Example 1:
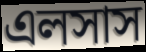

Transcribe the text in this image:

এলসাস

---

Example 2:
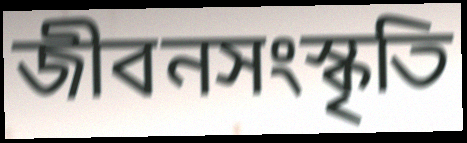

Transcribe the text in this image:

জীবনসংস্কৃতি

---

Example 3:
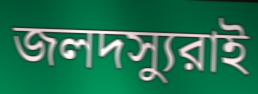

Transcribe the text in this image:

জলদস্যুরাই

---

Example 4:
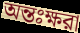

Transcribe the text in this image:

অন্তঃক্ষরা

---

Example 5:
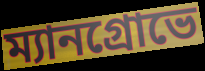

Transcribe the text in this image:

ম্যানগ্রোভে